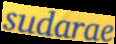
sudarae